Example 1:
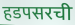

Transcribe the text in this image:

हडपसरची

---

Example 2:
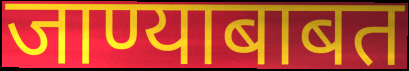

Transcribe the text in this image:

जाण्याबाबत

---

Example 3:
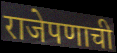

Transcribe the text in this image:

राजेपणाची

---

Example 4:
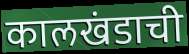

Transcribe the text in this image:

कालखंडाची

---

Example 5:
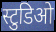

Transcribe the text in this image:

स्टुडिओ